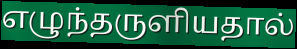
எழுந்தருளியதால்